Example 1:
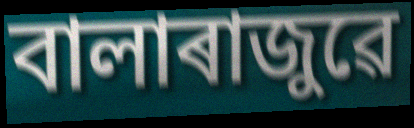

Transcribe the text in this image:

বালাৰাজুৱে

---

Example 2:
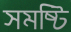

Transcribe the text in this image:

সমষ্টি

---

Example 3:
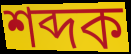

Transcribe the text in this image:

শব্দক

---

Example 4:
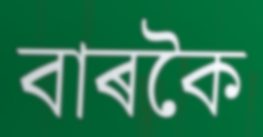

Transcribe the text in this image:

বাৰকৈ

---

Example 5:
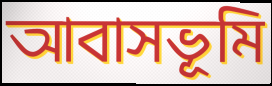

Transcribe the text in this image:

আবাসভূমি